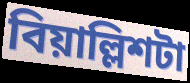
বিয়াল্লিশটা